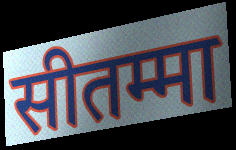
सीतम्मा